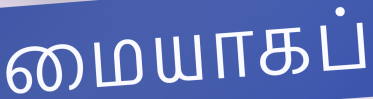
மையாகப்